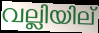
വല്ലിയില്